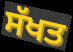
ਸੱਖਤ